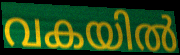
വകയിൽ